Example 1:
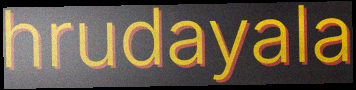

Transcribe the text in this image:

hrudayala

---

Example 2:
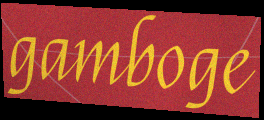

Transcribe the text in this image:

gamboge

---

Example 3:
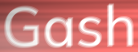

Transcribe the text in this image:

Gash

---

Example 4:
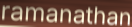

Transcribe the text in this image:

ramanathan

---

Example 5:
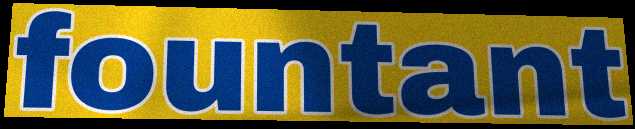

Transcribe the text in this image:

fountant